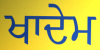
ਖਾਦੇਮ